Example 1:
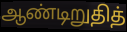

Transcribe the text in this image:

ஆண்டிறுதித்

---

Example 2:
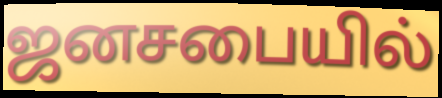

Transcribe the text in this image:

ஜனசபையில்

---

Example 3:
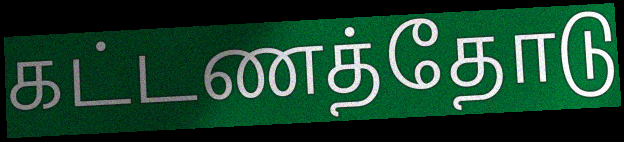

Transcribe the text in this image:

கட்டணத்தோடு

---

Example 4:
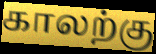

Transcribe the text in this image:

காலற்கு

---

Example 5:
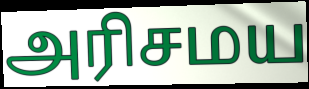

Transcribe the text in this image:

அரிசமய